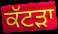
ਕੱਟੜਾ